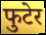
फुटेर